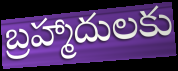
బ్రహ్మాదులకు